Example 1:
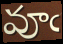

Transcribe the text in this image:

వూఁ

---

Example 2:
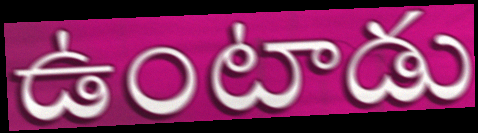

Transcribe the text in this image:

ఉంటాడు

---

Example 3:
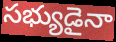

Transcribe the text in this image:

సభ్యుడైనా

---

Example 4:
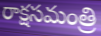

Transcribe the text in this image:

రాక్షసమంత్రి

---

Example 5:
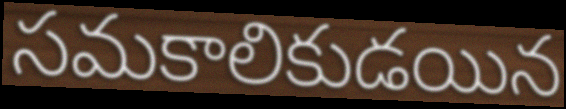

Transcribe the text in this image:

సమకాలికుడయిన